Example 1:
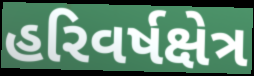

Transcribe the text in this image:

હરિવર્ષક્ષેત્ર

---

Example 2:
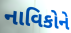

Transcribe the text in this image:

નાવિકોને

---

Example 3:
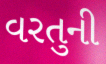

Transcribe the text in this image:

વરતુની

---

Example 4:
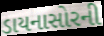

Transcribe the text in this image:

ડાયનાસોરની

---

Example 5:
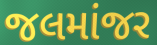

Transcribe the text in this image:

જલમાંજર